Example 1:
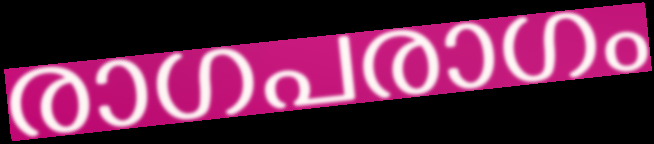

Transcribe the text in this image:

രാഗപരാഗം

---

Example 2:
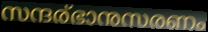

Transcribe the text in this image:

സന്ദര്ഭാനുസരണം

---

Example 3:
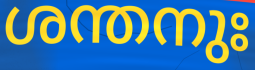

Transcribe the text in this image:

ശന്തനുഃ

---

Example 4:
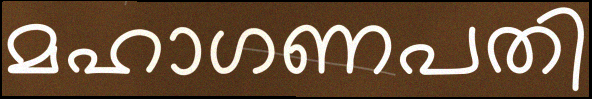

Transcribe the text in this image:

മഹാഗണപതി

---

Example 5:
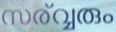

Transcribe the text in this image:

സര്വ്വരും